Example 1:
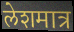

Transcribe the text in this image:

लेशमात्र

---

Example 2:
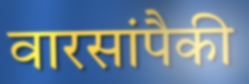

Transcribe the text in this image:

वारसांपैकी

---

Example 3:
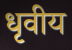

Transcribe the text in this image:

धृवीय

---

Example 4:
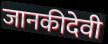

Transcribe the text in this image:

जानकीदेवी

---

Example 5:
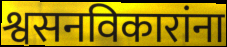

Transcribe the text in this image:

श्वसनविकारांना